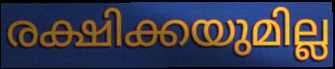
രക്ഷിക്കയുമില്ല